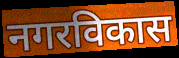
नगरविकास